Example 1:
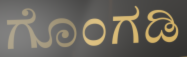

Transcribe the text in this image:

ಗೊಂಗಡಿ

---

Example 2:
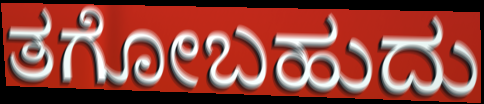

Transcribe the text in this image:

ತಗೋಬಹುದು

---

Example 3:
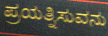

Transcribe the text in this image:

ಪ್ರಯತ್ನಿಸುವನು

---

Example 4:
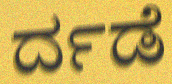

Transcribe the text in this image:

ರ್ದಡೆ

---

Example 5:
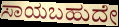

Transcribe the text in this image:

ಸಾಯಬಹುದೇ